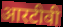
आरटीवी